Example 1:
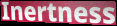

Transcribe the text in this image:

Inertness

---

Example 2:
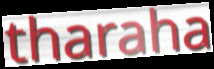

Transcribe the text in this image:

tharaha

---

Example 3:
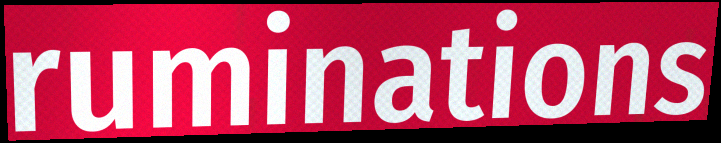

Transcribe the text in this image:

ruminations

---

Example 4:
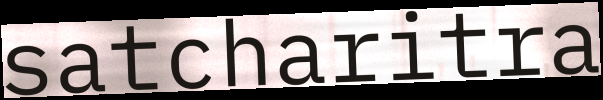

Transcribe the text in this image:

satcharitra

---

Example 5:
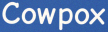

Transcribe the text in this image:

Cowpox